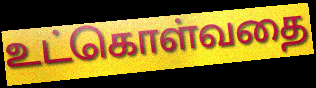
உட்கொள்வதை